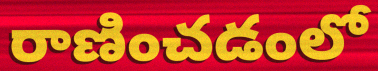
రాణించడంలో